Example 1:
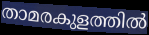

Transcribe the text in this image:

താമരകുളത്തിൽ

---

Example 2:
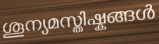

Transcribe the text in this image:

ശൂന്യമസ്തിഷ്കങ്ങൾ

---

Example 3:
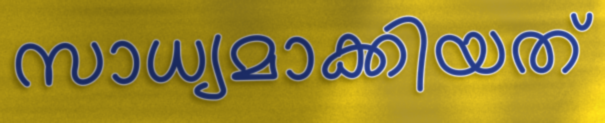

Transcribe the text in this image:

സാധ്യമാക്കിയത്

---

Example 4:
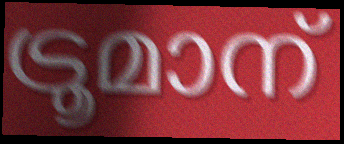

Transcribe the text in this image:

ട്രൂമാന്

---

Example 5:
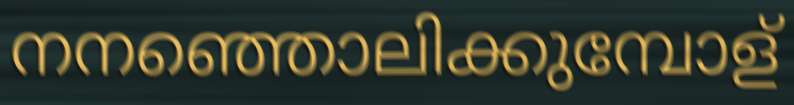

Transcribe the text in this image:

നനഞ്ഞൊലിക്കുമ്പോള്